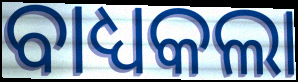
ବାଧ୍ୟକଲା